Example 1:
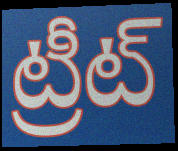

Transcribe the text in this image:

ట్రీట్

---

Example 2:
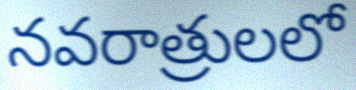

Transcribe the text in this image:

నవరాత్రులలో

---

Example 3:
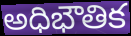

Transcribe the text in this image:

అధిభౌతిక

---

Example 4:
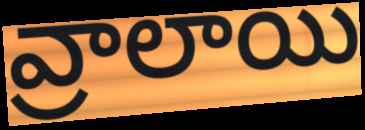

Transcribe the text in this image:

వ్రాలాయి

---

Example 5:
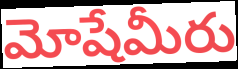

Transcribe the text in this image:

మోషేమీరు